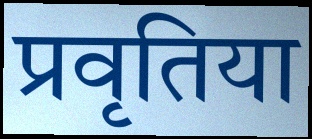
प्रवृतिया